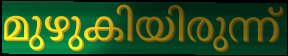
മുഴുകിയിരുന്ന്